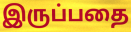
இருப்பதை